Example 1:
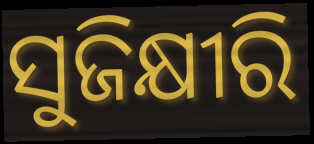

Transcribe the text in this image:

ସୁଜିକ୍ଷୀରି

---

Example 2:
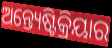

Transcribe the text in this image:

ଅନ୍ତ୍ୟେଷ୍ଟିକ୍ରିୟାର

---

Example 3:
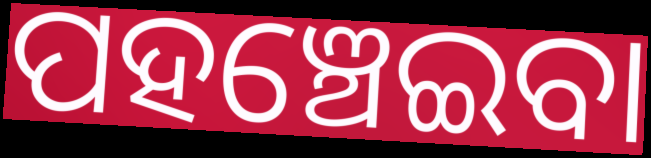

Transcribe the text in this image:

ପହଞ୍ଚେଇବା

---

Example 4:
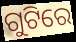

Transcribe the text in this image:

ଗୁଟିରେ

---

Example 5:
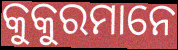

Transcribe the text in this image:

କୁକୁରମାନେ